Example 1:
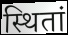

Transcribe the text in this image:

स्थितां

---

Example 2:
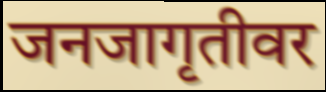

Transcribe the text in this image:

जनजागृतीवर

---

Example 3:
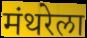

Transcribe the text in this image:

मंथरेला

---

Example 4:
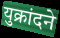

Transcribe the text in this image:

युक्रांदने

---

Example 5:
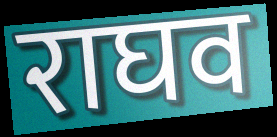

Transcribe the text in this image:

राघव